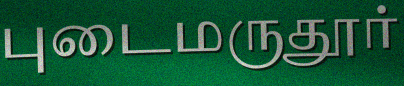
புடைமருதூர்